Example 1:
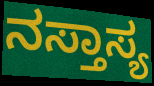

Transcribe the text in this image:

ನಸ್ತಾಸ್ಯ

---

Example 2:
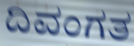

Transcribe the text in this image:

ದಿವಂಗತ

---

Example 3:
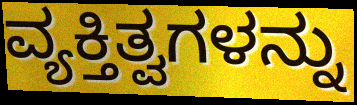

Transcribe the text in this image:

ವ್ಯಕ್ತಿತ್ವಗಳನ್ನು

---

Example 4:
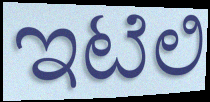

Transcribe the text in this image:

ಇಟೆಲಿ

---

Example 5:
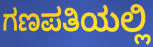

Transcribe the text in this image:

ಗಣಪತಿಯಲ್ಲಿ